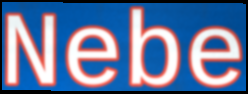
Nebe